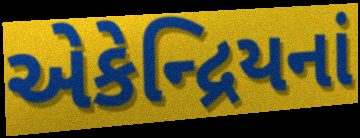
એકેન્દ્રિયનાં